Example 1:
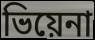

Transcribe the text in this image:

ভিয়েনা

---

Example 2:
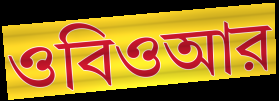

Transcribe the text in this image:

ওবিওআর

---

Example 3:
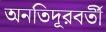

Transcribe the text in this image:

অনতিদূরবর্তী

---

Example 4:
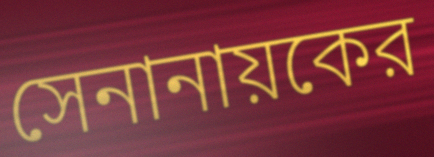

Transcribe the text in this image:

সেনানায়কের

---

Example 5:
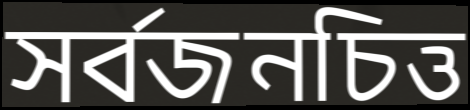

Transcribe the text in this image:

সর্বজনচিত্ত